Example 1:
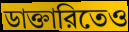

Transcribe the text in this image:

ডাক্তারিতেও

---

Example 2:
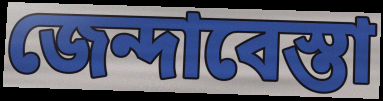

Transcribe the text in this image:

জেন্দাবেস্তা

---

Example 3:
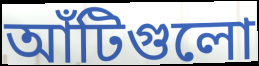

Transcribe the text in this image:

আঁটিগুলো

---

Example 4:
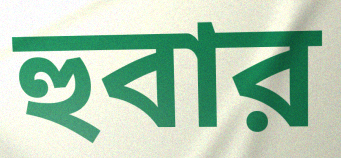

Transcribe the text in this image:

হুবার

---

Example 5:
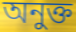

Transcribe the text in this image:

অনুক্ত